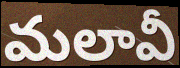
మలావీ